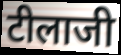
टीलाजी